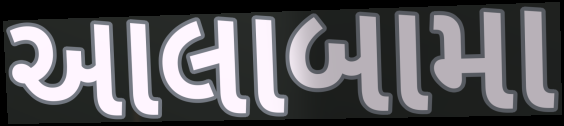
આલાબામા